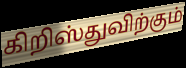
கிறிஸ்துவிற்கும்